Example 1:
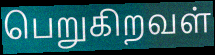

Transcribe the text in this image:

பெறுகிறவள்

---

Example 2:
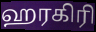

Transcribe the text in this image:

ஹரகிரி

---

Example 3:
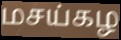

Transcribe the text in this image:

மசய்கழ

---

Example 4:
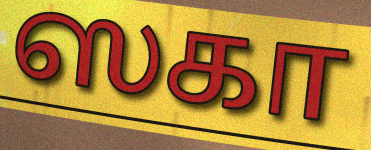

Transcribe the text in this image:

ஸகா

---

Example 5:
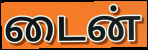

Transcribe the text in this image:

டைன்